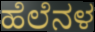
ಹೆಲೆನಳ